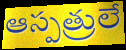
ఆస్పత్రులే